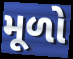
મૂળો